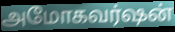
அமோகவர்ஷன்